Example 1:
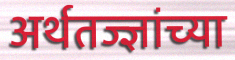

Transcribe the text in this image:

अर्थतज्ज्ञांच्या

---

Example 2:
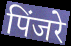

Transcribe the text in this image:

पिंजरे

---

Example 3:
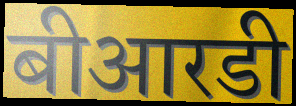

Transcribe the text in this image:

बीआरडी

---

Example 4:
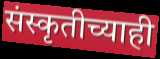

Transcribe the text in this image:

संस्कृतीच्याही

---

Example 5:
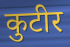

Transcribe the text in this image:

कुटीर